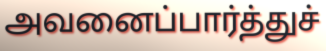
அவனைப்பார்த்துச்